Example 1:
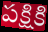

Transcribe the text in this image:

పక్షికి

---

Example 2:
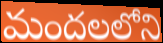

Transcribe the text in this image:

మందలలోని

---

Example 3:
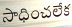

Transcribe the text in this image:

సాధించలేక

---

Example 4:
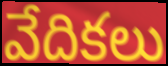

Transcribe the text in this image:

వేదికలు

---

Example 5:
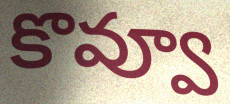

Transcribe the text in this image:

కొవ్వూ